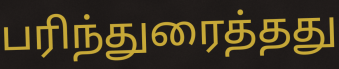
பரிந்துரைத்தது